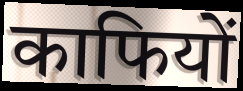
काफियों